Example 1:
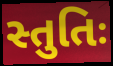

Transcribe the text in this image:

સ્તુતિઃ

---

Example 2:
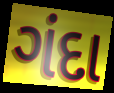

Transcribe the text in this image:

ગંદા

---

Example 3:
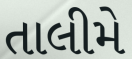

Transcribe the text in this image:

તાલીમે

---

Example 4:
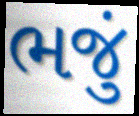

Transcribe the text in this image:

ભજું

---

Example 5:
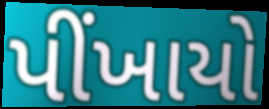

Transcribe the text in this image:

પીંખાયો